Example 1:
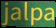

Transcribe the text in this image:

jalpa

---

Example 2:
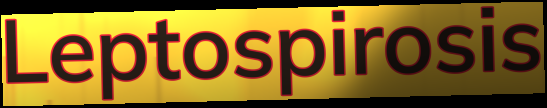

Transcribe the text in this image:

Leptospirosis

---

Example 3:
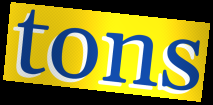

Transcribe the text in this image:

tons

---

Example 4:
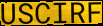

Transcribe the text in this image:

USCIRF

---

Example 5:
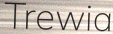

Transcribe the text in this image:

Trewia